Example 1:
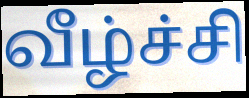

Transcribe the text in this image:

வீழ்ச்சி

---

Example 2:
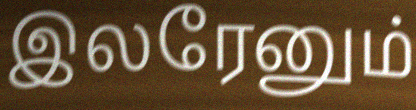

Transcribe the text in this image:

இலரேனும்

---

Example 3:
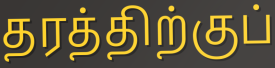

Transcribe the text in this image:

தரத்திற்குப்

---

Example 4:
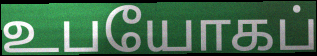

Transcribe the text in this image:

உபயோகப்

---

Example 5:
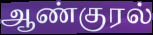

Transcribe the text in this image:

ஆண்குரல்